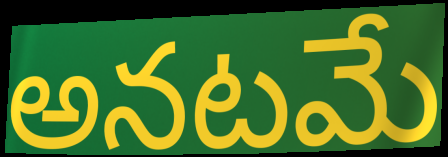
అనటమే